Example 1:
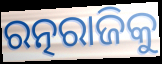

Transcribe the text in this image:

ରତ୍ନରାଜିକୁ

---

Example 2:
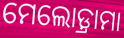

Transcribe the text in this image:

ମେଲୋଡ଼୍ରାମା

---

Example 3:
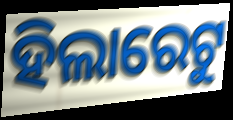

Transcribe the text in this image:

ହିଲାରେଟୁ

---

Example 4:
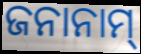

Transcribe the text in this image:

ଜନାନାମ୍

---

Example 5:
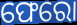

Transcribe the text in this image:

ଫେରୋ